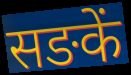
सङकें